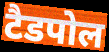
टैडपोल